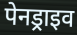
पेनड्राइव